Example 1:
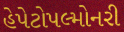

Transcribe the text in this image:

હેપેટોપલ્મોનરી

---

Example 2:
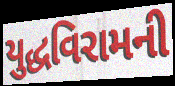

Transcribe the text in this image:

યુદ્ધવિરામની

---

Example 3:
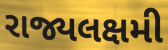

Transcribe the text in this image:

રાજ્યલક્ષમી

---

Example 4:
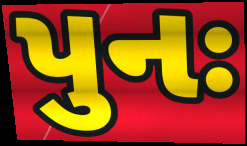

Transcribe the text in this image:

પુનઃ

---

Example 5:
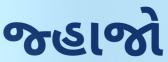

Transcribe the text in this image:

જ્હાજો